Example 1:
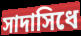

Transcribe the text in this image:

সাদাসিধে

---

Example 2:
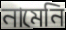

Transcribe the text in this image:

নামেনি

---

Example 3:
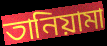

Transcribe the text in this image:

তানিয়ামা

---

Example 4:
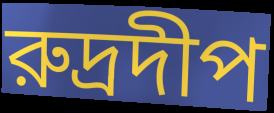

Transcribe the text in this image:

রুদ্রদীপ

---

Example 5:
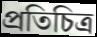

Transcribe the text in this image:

প্রতিচিত্র